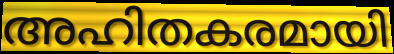
അഹിതകരമായി